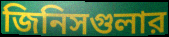
জিনিসগুলার